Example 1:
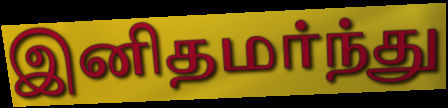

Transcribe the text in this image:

இனிதமர்ந்து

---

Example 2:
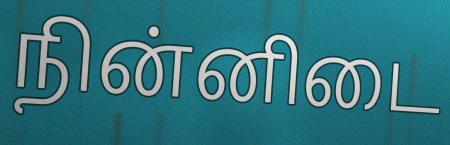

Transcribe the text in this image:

நின்னிடை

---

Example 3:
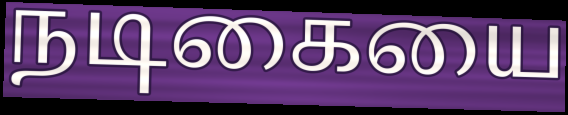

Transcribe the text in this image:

நடிகையை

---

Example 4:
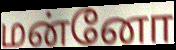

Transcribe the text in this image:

மன்னோ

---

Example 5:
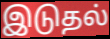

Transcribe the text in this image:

இடுதல்